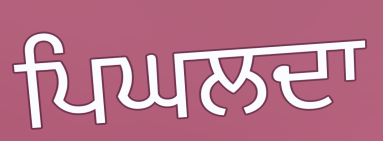
ਪਿਘਲਦਾ